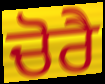
ਚੋਰੈ